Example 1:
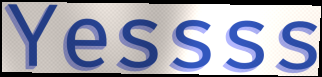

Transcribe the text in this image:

Yessss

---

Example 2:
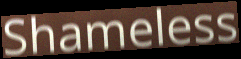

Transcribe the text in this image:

Shameless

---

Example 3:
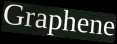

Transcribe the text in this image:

Graphene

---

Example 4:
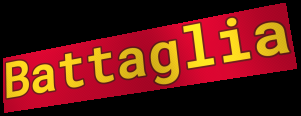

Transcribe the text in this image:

Battaglia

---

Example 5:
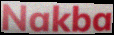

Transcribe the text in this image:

Nakba